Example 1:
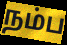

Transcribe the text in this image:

நம்ப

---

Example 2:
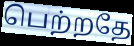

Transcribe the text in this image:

பெற்றதே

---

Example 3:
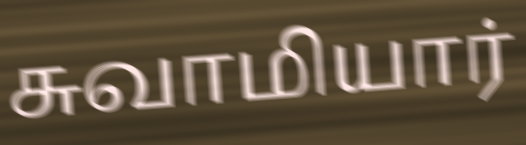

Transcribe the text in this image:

சுவாமியார்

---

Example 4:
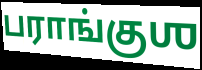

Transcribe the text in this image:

பராங்குஶ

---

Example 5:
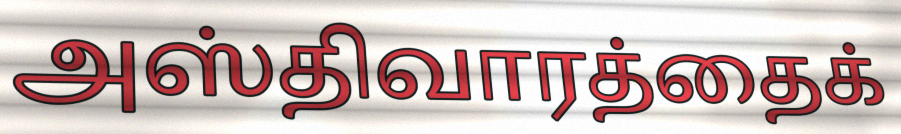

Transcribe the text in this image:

அஸ்திவாரத்தைக்